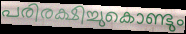
പരിരക്ഷിച്ചുകൊണ്ടും